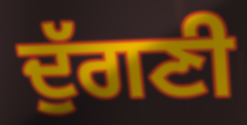
ਦੁੱਗਣੀ